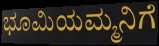
ಭೂಮಿಯಮ್ಮನಿಗೆ